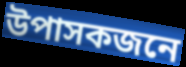
উপাসকজনে